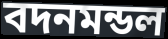
বদনমন্ডল